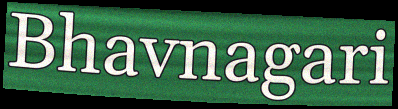
Bhavnagari